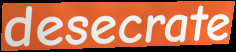
desecrate